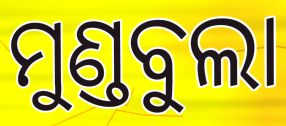
ମୁଣ୍ଡବୁଲା